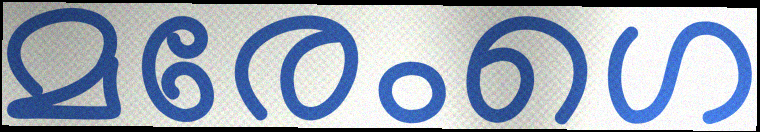
മരേംഗെ